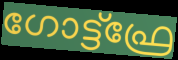
ഗോട്ട്ഫ്രേ